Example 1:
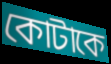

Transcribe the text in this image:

কোটাকে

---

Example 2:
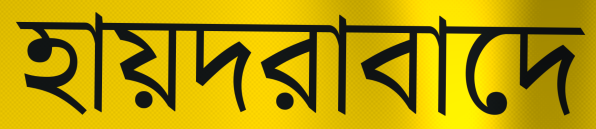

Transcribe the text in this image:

হায়দরাবাদে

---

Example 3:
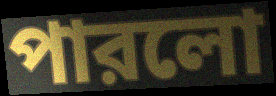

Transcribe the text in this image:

পারলো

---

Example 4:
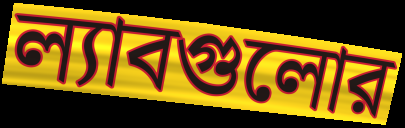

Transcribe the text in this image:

ল্যাবগুলোর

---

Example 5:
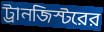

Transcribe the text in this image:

ট্রানজিস্টরের